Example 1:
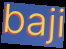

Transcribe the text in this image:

baji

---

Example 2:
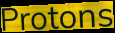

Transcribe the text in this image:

Protons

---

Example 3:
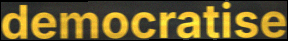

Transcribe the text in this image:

democratise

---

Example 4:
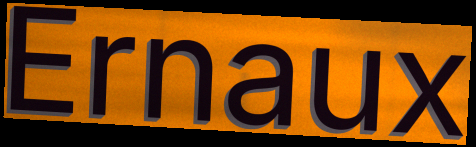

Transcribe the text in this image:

Ernaux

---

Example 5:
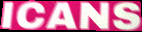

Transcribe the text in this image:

ICANS